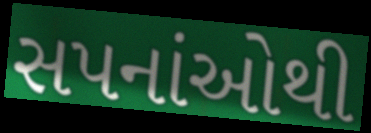
સપનાંઓથી